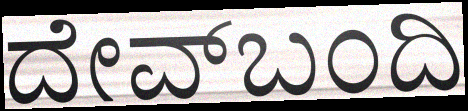
ದೇವ್‌ಬಂದಿ